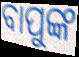
ବାପୁଙ୍କ